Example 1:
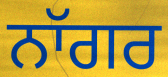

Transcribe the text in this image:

ਨਾੱਗਰ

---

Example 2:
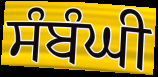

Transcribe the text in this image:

ਸੰਬੰਘੀ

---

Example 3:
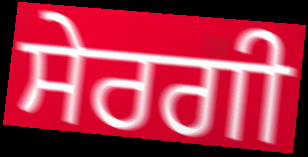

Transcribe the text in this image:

ਸੇਰਗੀ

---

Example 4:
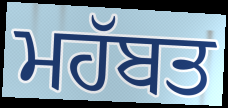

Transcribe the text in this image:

ਮਹੱਬਤ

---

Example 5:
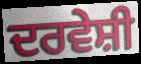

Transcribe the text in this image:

ਦਰਵੇਸ਼ੀ